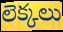
లెక్కలు